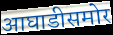
आघाडीसमोर